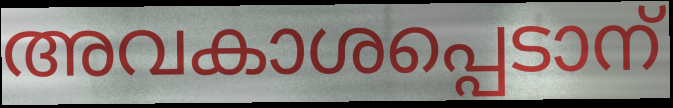
അവകാശപ്പെടാന്